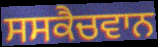
ਸਸਕੈਚਵਾਨ